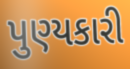
પુણ્યકારી